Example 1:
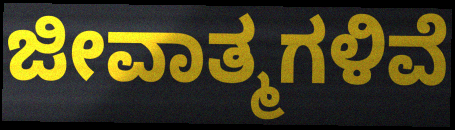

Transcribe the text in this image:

ಜೀವಾತ್ಮಗಳಿವೆ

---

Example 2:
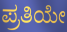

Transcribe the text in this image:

ಪ್ರತಿಯೇ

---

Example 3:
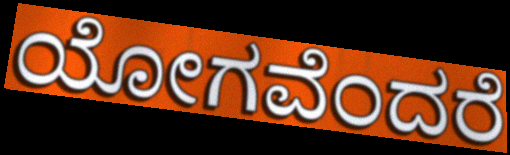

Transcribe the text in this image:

ಯೋಗವೆಂದರೆ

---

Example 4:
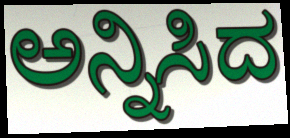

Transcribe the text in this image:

ಅನ್ನಿಸಿದ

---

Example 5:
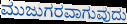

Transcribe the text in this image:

ಮುಜುಗರವಾಗುವುದು